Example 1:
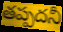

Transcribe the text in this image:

తప్పదనీ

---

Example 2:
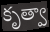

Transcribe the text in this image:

కృత్వా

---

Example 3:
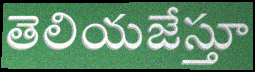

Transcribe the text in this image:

తెలియజేస్తూ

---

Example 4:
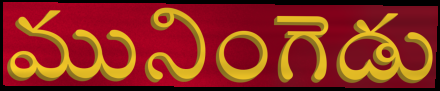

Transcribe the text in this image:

మునింగెడు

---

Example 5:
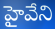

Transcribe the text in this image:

హైవేని